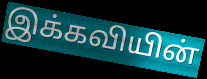
இக்கவியின்